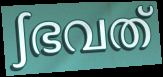
ഽഭവത്